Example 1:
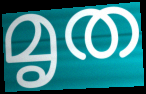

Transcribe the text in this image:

മൃത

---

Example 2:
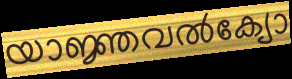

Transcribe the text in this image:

യാജ്ഞവൽക്യോ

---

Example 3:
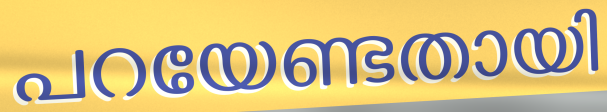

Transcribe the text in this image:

പറയേണ്ടതായി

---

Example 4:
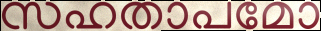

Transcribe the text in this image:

സഹതാപമോ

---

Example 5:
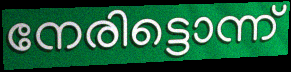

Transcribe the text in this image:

നേരിട്ടൊന്ന്